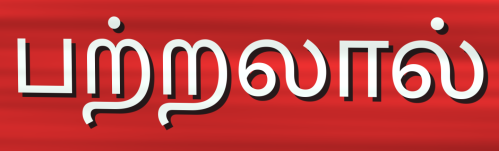
பற்றலால்